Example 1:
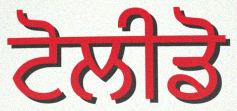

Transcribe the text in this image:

ਟੋਲੀਡੋ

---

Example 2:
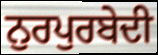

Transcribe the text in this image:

ਨੁਰਪੁਰਬੇਦੀ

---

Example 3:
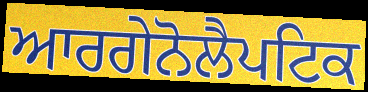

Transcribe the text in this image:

ਆਰਗੇਨੋਲੈਪਟਿਕ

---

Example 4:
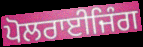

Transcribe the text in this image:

ਪੋਲਰਾਈਜਿੰਗ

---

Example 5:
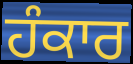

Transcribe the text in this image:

ਹੰਕਾਰ